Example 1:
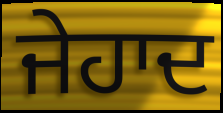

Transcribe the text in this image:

ਜੇਹਾਦ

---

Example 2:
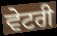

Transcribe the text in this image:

ਵੇਟਰੀ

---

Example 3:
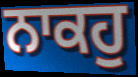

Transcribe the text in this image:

ਨਾਕਹੁ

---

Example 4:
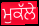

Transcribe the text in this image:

ਮੁਕੱਲੇ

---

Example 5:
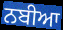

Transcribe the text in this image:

ਨਬੀਆ